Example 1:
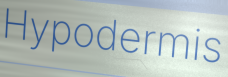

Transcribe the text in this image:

Hypodermis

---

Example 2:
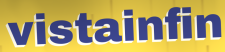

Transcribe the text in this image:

vistainfin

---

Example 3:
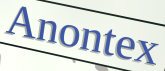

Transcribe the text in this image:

Anontex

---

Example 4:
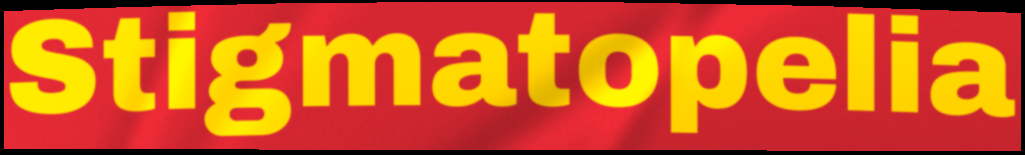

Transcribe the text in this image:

Stigmatopelia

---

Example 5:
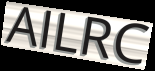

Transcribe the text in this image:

AILRC